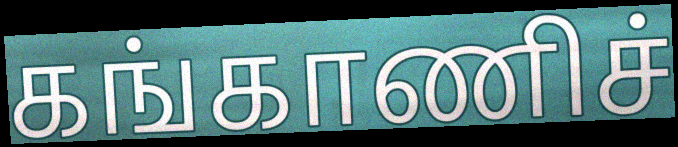
கங்காணிச்